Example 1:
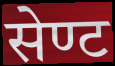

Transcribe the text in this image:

सेण्ट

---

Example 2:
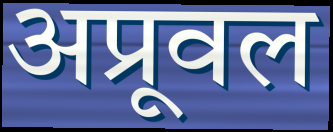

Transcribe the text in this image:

अप्रूवल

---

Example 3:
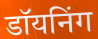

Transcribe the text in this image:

डॉयनिंग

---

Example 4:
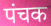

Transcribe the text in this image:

पंचक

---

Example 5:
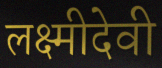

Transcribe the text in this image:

लक्ष्मीदेवी